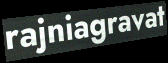
rajniagravat